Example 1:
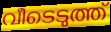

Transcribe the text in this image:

വീടെടുത്ത്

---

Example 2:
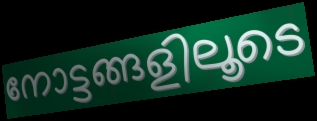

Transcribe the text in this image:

നോട്ടങ്ങളിലൂടെ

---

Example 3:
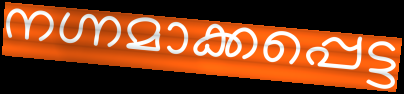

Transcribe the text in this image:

നഗ്നമാക്കപ്പെട്ട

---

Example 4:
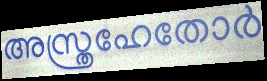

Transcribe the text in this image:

അസ്ത്രഹേതോർ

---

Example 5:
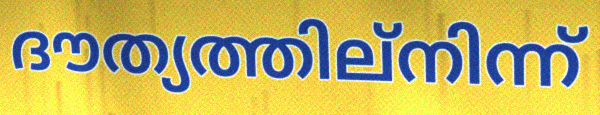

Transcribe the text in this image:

ദൗത്യത്തില്നിന്ന്